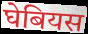
घेबियस